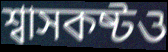
শ্বাসকষ্টও